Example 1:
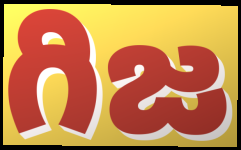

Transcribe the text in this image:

గిజ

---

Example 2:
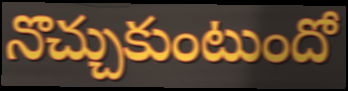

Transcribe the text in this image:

నొచ్చుకుంటుందో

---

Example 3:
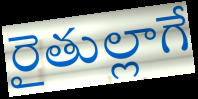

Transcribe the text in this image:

రైతుల్లాగే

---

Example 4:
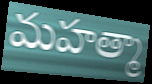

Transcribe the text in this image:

మహత్మా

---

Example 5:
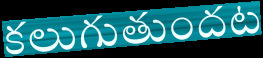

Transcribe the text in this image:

కలుగుతుందట